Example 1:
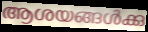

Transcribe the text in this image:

ആശയങ്ങൾക്കു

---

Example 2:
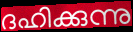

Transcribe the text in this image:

ദഹിക്കുന്നു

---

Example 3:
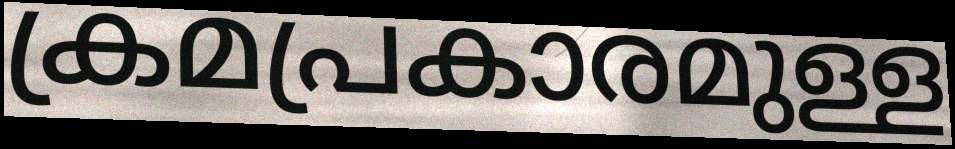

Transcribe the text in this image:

ക്രമപ്രകാരമുള്ള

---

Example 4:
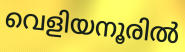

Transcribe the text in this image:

വെളിയനൂരിൽ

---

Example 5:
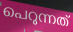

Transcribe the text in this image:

പെറുന്നത്